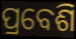
ପ୍ରବେଶି